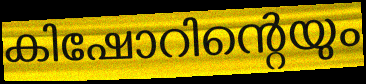
കിഷോറിന്റെയും